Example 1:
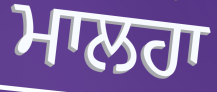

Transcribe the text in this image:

ਮਾਲਹਾ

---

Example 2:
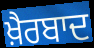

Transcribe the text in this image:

ਖ਼ੈਰਬਾਦ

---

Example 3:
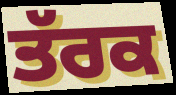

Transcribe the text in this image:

ਤੱਰਕ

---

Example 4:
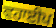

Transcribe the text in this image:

ਵਹਾਈਪ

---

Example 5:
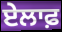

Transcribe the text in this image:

ਏਲਾਫ਼